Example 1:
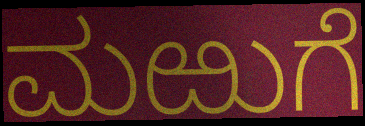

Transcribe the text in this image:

ಮಱುಗೆ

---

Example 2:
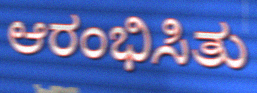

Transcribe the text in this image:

ಆರಂಭಿಸಿತು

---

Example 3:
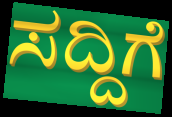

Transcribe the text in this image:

ಸದ್ದಿಗೆ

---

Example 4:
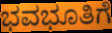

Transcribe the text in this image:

ಭವಭೂತಿಗೆ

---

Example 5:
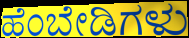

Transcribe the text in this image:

ಹೆಂಬೇಡಿಗಳು